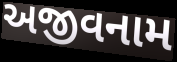
અજીવનામ